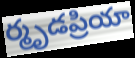
ర్మృడప్రియా